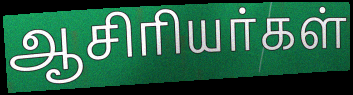
ஆசிரியர்கள்